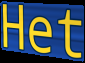
Het